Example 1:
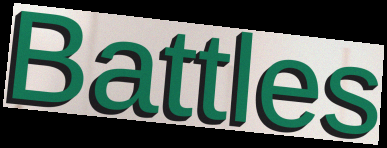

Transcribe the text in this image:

Battles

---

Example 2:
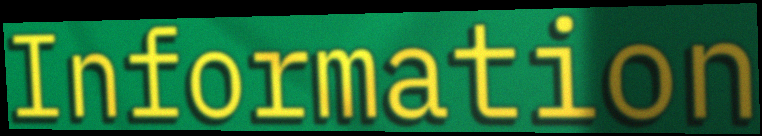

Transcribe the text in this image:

Information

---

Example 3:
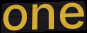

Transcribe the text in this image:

one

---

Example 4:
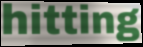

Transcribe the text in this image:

hitting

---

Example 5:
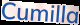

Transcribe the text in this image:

Cumilla